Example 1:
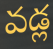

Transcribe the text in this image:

వడ్ల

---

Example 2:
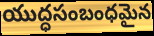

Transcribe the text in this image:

యుద్ధసంబంధమైన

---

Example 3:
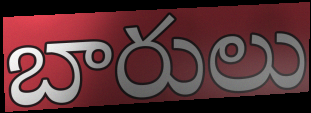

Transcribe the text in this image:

బారులు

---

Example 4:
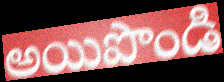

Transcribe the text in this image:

అయిపొండి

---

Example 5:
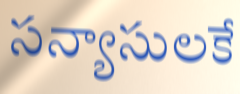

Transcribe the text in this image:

సన్యాసులకే